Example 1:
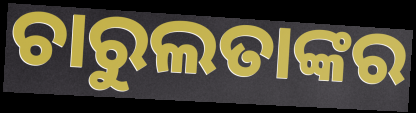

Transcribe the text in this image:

ଚାରୁଲତାଙ୍କର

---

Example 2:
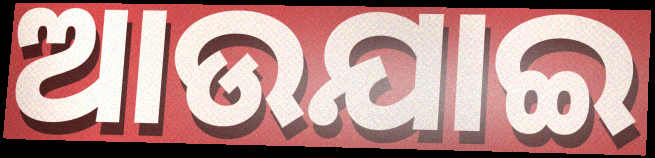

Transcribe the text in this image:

ଆଉଯାଇ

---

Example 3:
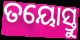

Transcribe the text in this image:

ତୟୋସ୍ତୁ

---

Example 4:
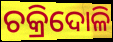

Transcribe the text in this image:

ଚକ୍ରିଦୋଳି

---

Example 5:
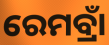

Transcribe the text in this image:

ରେମବ୍ରାଁ